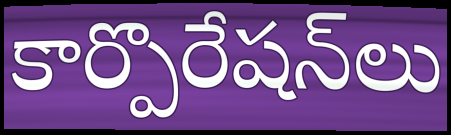
కార్పొరేషన్‌లు